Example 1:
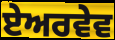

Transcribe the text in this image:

ਏਅਰਵੇਵ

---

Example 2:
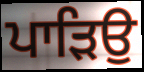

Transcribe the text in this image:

ਪਾੜਿਉ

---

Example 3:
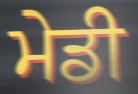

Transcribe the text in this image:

ਮੇਡੀ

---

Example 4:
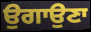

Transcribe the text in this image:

ਉਗਾਉਣਾ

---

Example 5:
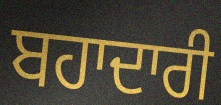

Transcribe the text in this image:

ਬਹਾਦਾਰੀ